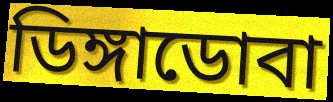
ডিঙ্গাডোবা